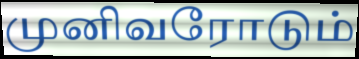
முனிவரோடும்